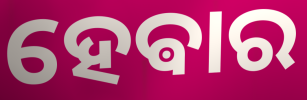
ହେଵାର